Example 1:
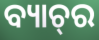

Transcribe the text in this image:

ବ୍ୟାଚ୍‌ର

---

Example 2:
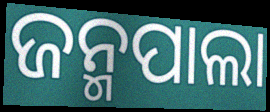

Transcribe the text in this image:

ଜନ୍ମପାଲା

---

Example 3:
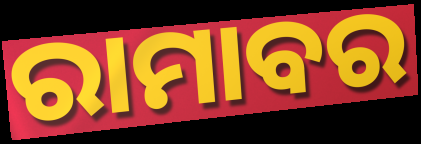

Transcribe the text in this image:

ରାମାବର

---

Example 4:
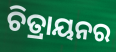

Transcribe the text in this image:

ଚିତ୍ରାୟନର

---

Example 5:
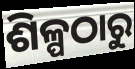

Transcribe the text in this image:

ଶିଳ୍ପଠାରୁ